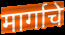
मार्गाचे